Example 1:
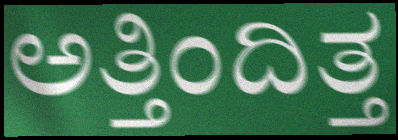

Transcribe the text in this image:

ಅತ್ತಿಂದಿತ್ತ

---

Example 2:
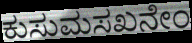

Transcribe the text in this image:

ಕುಸುಮಸಖನೇಂ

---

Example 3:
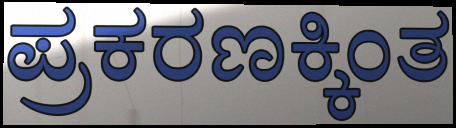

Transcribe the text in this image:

ಪ್ರಕರಣಕ್ಕಿಂತ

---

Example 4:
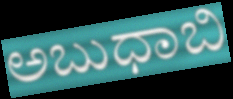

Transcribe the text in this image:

ಅಬುಧಾಬಿ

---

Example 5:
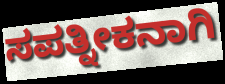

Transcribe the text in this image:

ಸಪತ್ನೀಕನಾಗಿ